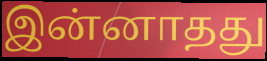
இன்னாதது